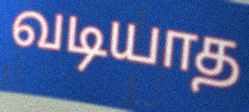
வடியாத